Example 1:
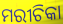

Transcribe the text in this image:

ମରୀଚିକା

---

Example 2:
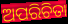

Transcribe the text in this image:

ଅପରିଚିତା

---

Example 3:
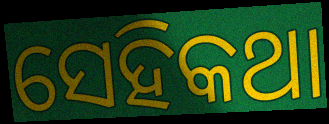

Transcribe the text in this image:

ସେହିକଥା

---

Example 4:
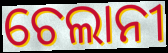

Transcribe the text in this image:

ଚେଲାନୀ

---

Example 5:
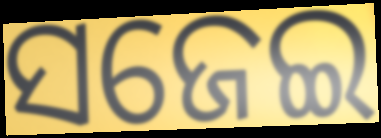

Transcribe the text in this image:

ସଜେଇ